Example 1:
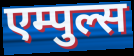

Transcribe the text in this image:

एम्पुल्स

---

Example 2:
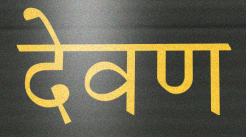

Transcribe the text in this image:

देवण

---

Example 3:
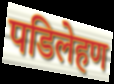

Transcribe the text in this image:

पडिलेहण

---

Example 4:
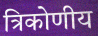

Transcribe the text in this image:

त्रिकोणीय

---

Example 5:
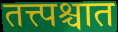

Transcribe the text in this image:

तत्त्पश्चात